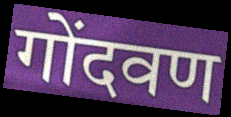
गोंदवण